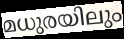
മധുരയിലും